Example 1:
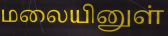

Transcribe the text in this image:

மலையினுள்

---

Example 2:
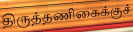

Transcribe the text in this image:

திருத்தணிகைக்குச்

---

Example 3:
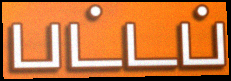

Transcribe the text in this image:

பட்டப்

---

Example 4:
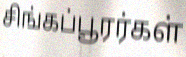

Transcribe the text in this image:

சிங்கப்பூரர்கள்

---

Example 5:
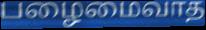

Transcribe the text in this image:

பழைமைவாத